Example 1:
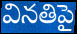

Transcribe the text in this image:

వినతిపై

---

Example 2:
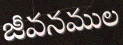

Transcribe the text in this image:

జీవనముల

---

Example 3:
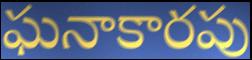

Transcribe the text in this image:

ఘనాకారపు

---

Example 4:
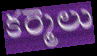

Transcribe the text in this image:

కర్మెలు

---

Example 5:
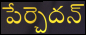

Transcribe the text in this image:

పేర్చెదన్